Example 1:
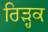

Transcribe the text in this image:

ਰਿੜ੍ਹਕ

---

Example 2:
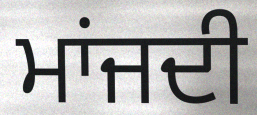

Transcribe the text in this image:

ਮਾਂਜਦੀ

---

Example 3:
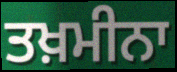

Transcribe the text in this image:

ਤਖ਼ਮੀਨਾ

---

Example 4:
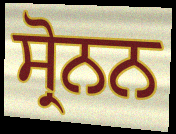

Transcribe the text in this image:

ਸ੍ਰੋਨਨ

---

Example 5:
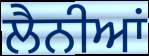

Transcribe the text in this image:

ਲੈਨੀਆਂ